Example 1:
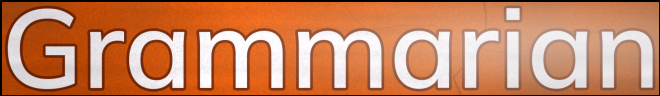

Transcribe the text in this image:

Grammarian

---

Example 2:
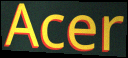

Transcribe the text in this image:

Acer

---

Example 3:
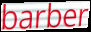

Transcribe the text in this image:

barber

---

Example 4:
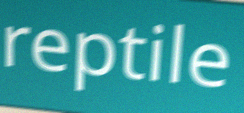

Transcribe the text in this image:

reptile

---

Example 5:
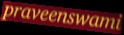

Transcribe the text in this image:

praveenswami